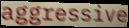
aggressive